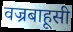
वज्रबाहूसी